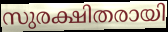
സുരക്ഷിതരായി